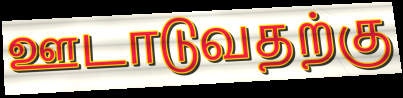
ஊடாடுவதற்கு